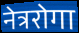
नेत्ररोगा